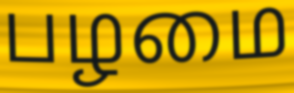
பழமை